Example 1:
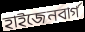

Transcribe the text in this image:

হাইজেনবাৰ্গ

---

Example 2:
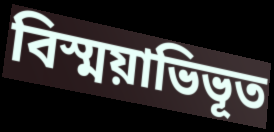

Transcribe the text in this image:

বিস্ময়াভিভূত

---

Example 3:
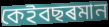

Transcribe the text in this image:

কেইবছৰমান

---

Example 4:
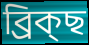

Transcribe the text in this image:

ব্ৰিক্‌ছ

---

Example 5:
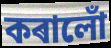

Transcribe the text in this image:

কৰালোঁ